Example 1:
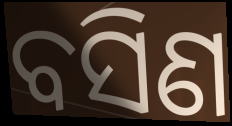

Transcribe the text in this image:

ବସିଣ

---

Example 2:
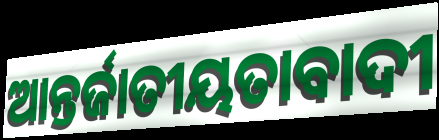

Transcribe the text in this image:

ଆନ୍ତର୍ଜାତୀୟତାବାଦୀ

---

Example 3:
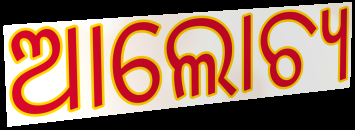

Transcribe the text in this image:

ଆଲୋଚ୍ୟ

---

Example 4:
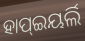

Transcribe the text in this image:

ହାପ୍ଇୟର୍ଲି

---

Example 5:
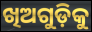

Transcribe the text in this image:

ଖିଅଗୁଡ଼ିକୁ